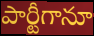
పార్టీగానూ